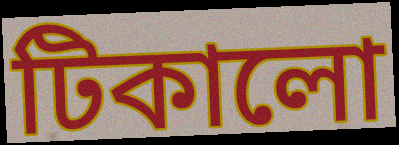
টিকালো